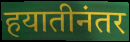
हयातीनंतर